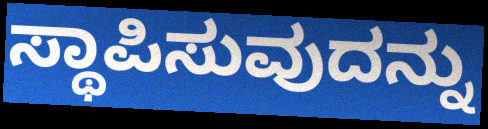
ಸ್ಥಾಪಿಸುವುದನ್ನು